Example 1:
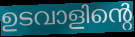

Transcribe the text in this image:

ഉടവാളിന്റെ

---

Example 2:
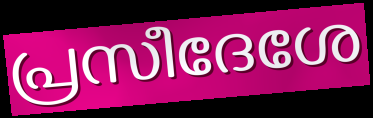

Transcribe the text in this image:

പ്രസീദേശേ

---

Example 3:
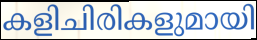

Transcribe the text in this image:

കളിചിരികളുമായി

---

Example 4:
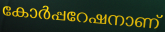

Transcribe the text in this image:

കോർപ്പറേഷനാണ്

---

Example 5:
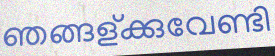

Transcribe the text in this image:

ഞങ്ങള്ക്കുവേണ്ടി